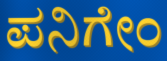
ಪನಿಗೇಂ